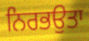
ਨਿਰਭਉਤਾ